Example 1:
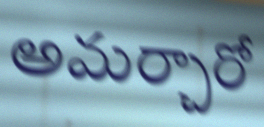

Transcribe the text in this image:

అమర్చారో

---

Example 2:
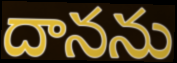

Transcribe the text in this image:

దానను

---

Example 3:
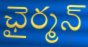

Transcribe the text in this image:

ఛైర్మన్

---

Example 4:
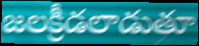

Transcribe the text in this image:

జలక్రీడలాడుతూ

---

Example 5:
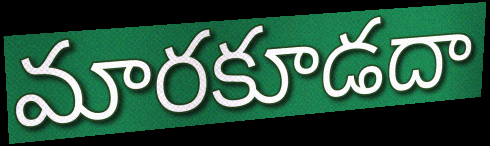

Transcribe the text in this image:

మారకూడదా